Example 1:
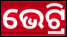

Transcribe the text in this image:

ଭେଟ୍ରି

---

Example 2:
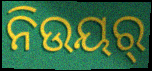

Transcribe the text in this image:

ନିଉୟର୍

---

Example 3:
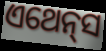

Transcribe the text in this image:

ଏଥେନ୍‌ସ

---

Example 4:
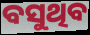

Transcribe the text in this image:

ବସୁଥିବ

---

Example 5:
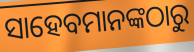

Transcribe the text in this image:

ସାହେବମାନଙ୍କଠାରୁ